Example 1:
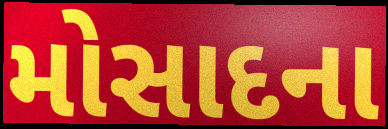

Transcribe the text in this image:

મોસાદના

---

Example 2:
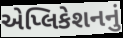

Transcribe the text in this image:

એપ્લિકેશનનું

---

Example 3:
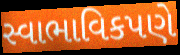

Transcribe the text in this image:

સ્વાભાવિકપણે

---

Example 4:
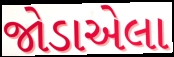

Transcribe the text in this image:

જોડાએલા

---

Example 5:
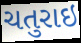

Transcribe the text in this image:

ચતુરાઇ